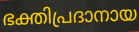
ഭക്തിപ്രദാനായ